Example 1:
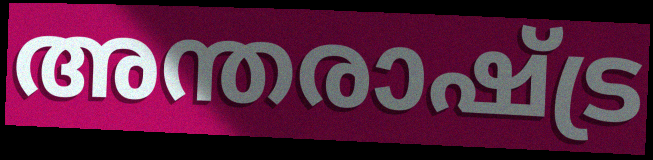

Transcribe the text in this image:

അന്തരാഷ്ട്ര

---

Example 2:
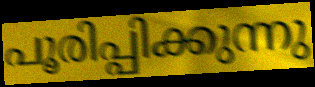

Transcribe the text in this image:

പൂരിപ്പിക്കുന്നു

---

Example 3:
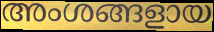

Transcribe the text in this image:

അംശങ്ങളായ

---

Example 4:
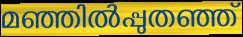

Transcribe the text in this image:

മഞ്ഞിൽപ്പുതഞ്ഞ്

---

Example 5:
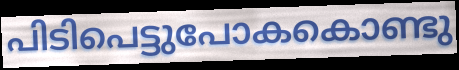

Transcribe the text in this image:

പിടിപെട്ടുപോകകൊണ്ടു